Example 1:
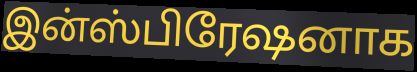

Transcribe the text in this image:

இன்ஸ்பிரேஷனாக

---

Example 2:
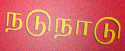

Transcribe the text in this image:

நடுநாடு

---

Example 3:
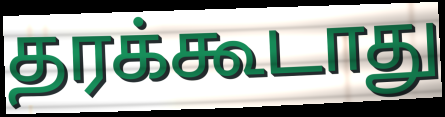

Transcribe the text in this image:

தரக்கூடாது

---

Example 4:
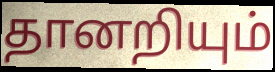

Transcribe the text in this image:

தானறியும்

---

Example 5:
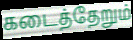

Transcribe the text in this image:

கடைத்தேறும்